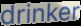
drinker